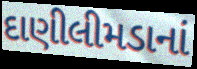
દાણીલીમડાનાં